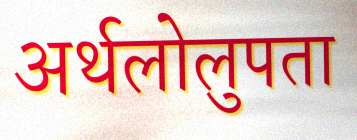
अर्थलोलुपता